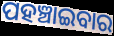
ପହଞ୍ଚାଇବାର